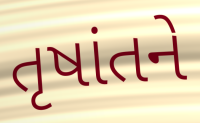
તૃષાંતને